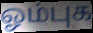
ஓம்புக